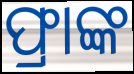
ଫ୍ରାଙ୍କ